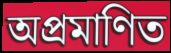
অপ্ৰমাণিত